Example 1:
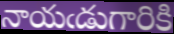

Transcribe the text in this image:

నాయఁడుగారికి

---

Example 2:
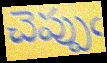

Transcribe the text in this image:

చెప్పుఁ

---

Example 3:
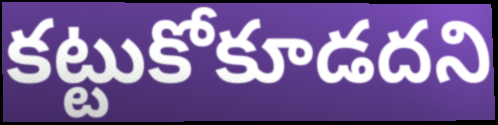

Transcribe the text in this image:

కట్టుకోకూడదని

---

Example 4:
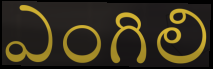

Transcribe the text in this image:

ఎంగిలి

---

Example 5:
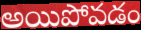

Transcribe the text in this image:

అయిపోవడం